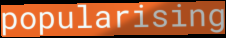
popularising